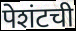
पेशंटची